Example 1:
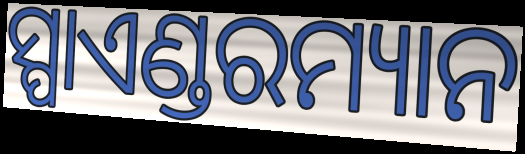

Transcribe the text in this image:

ସ୍ପାଏଣ୍ଡରମ୍ୟାନ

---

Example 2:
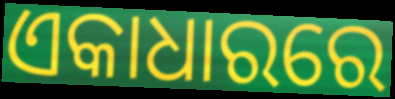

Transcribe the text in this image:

ଏକାଧାରରେ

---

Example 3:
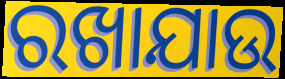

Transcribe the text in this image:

ରଖାଯାଉ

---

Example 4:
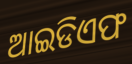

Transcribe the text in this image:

ଆଇଡିଏଫ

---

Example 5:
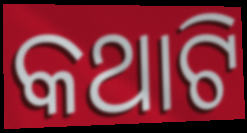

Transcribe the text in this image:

କଥାଟି